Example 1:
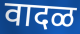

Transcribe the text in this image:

वादळ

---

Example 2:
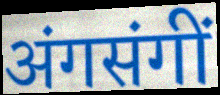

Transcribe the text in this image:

अंगसंगीं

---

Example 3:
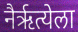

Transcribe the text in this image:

नैर्ऋत्येला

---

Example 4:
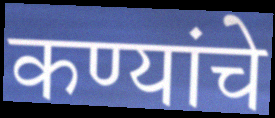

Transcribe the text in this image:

कण्यांचे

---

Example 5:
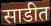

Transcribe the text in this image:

साडीत